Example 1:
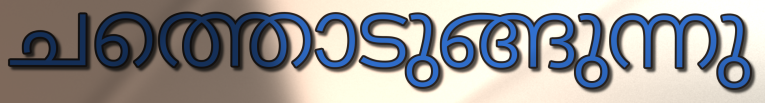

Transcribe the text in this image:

ചത്തൊടുങ്ങുന്നു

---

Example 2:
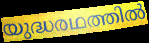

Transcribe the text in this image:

യുദ്ധരഥത്തിൽ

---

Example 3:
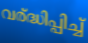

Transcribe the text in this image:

വര്ദ്ധിപ്പിച്ച്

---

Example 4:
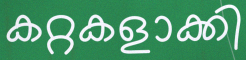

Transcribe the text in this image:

കറ്റകളാക്കി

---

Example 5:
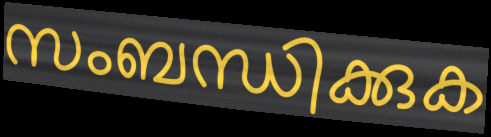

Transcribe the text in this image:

സംബന്ധിക്കുക